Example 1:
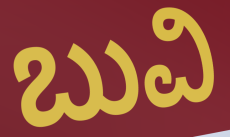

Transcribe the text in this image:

ಬುವಿ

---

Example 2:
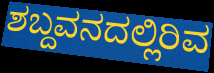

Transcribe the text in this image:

ಶಬ್ದವನದಲ್ಲಿರಿವ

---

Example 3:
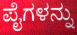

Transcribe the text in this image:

ಪೈಗಳನ್ನು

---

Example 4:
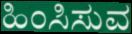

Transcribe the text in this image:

ಹಿಂಸಿಸುವ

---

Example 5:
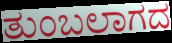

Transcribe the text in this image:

ತುಂಬಲಾಗದ